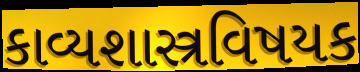
કાવ્યશાસ્ત્રવિષયક